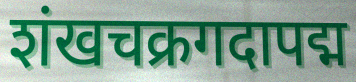
शंखचक्रगदापद्म